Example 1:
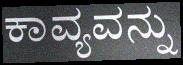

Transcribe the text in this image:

ಕಾವ್ಯವನ್ನು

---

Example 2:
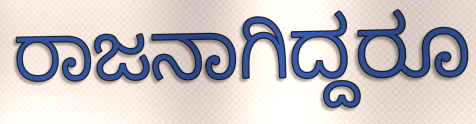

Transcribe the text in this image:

ರಾಜನಾಗಿದ್ದರೂ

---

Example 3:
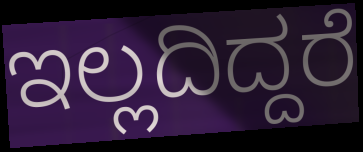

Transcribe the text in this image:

ಇಲ್ಲದಿದ್ದರೆ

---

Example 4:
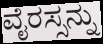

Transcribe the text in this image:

ವೈರಸ್ಸನ್ನು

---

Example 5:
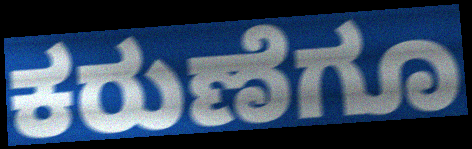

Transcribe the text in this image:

ಕರುಣೆಗೂ